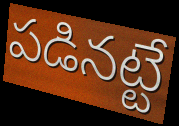
పడినట్టే